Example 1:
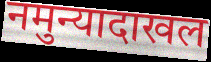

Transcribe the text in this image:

नमुन्यादाखल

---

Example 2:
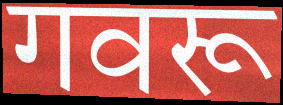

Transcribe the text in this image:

गवरू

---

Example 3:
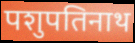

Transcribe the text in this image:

पशुपतिनाथ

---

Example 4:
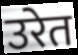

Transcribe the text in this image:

उरेत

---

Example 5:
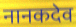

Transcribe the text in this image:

नानकदेव